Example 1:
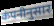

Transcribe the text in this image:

कंपनीनुसार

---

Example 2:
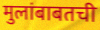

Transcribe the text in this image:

मुलांबाबतची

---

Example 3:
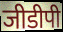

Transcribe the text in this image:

जीडीपी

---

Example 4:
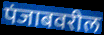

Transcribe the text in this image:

पंजाबवरील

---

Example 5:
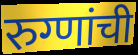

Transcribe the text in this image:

रुग्‍णांची